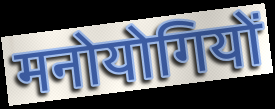
मनोयोगियों